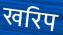
खरिप